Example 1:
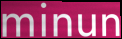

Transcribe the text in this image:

minun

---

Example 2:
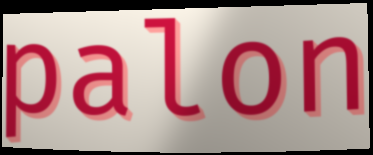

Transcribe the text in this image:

palon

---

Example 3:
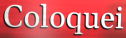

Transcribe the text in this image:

Coloquei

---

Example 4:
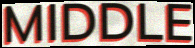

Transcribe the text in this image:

MIDDLE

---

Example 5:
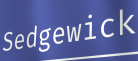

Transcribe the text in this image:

Sedgewick